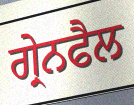
ਗ੍ਰੇਨਫੈਲ